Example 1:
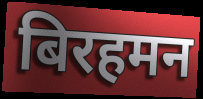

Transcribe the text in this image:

बिरहमन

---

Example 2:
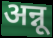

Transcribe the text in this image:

अन्नू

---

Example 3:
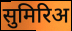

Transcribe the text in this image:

सुमिरिअ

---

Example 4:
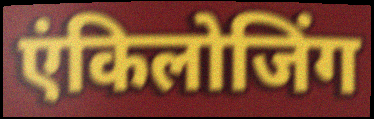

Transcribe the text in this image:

एंकिलोजिंग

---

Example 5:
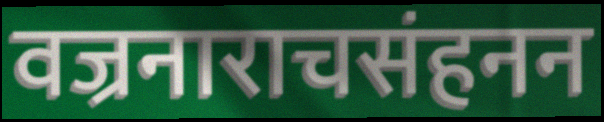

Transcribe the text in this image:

वज्रनाराचसंहनन